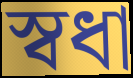
স্বধা